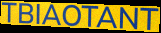
TBIAOTANT